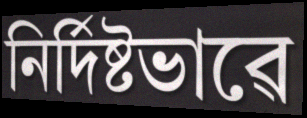
নিৰ্দিষ্টভাৱে